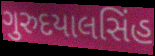
ગુરુદયાલસિંહ